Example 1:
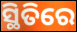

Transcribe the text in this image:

ସ୍ଥିତିରେ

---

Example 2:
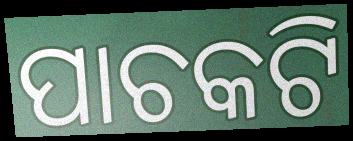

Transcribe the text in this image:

ପାଚକଟି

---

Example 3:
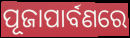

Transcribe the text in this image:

ପୂଜାପାର୍ବଣରେ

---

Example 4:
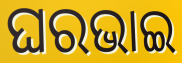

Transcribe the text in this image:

ଘରଭାଇ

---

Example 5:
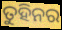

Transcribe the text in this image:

ତୁହିନର